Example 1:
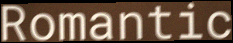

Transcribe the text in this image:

Romantic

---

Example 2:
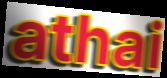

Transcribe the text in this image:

athai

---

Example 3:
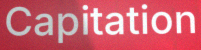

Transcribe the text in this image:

Capitation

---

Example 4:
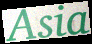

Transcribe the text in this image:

Asia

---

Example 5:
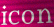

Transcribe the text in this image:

icon